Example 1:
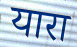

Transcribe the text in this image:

यारा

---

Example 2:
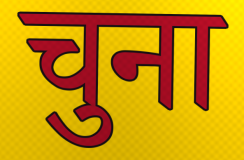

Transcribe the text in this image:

चुना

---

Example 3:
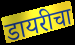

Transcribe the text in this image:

डायरीचा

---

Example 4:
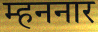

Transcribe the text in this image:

म्हननार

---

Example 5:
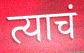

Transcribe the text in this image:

त्याचं